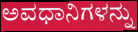
ಅವಧಾನಿಗಳನ್ನು